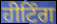
ਹੀਟਿੰਗ